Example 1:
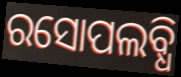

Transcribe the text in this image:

ରସୋପଲବ୍ଧି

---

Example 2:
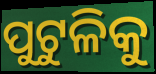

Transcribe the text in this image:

ପୁଟୁଳିକୁ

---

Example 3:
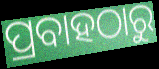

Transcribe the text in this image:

ପ୍ରବାହଠାରୁ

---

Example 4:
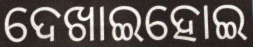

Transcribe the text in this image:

ଦେଖାଇହୋଇ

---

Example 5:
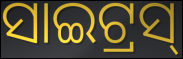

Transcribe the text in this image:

ସାଇଟ୍ରସ୍